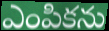
ఎంపికను